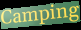
Camping